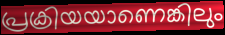
പ്രക്രിയയാണെങ്കിലും